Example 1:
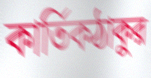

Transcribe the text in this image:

কার্তিকঠাকুর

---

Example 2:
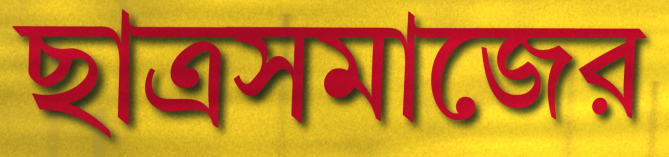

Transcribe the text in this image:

ছাত্রসমাজের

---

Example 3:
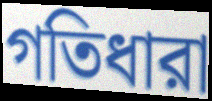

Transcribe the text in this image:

গতিধারা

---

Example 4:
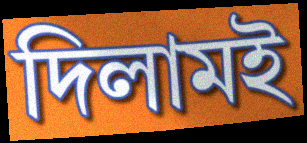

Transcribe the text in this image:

দিলামই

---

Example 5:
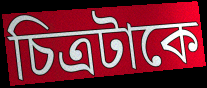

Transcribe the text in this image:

চিত্রটাকে